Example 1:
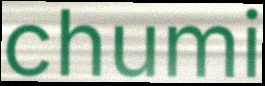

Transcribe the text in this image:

chumi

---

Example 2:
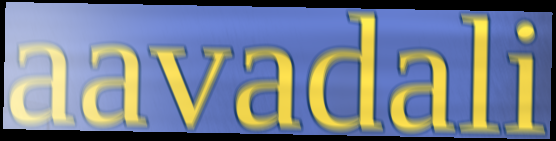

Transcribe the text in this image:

aavadali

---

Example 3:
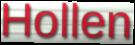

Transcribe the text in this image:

Hollen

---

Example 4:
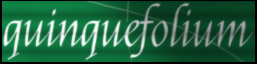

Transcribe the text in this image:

quinquefolium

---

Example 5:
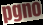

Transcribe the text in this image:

pgno